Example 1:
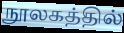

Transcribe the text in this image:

நூலகத்தில்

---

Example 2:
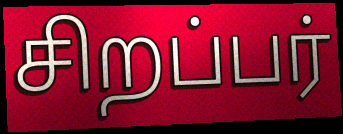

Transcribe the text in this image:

சிறப்பர்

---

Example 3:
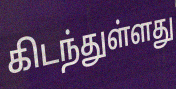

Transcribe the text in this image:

கிடந்துள்ளது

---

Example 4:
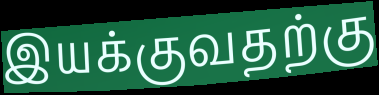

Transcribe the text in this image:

இயக்குவதற்கு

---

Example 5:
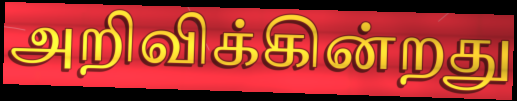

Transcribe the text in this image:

அறிவிக்கின்றது